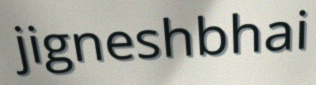
jigneshbhai